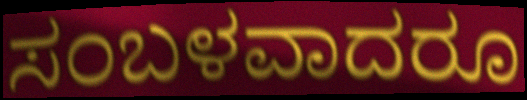
ಸಂಬಳವಾದರೂ